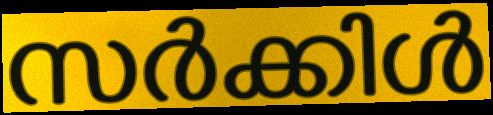
സർക്കിൾ